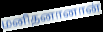
மனிதனானான்